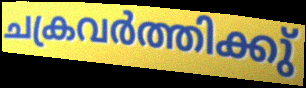
ചക്രവർത്തിക്കു്